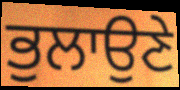
ਭੁਲਾਉਣੇ